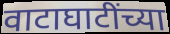
वाटाघाटींच्या